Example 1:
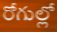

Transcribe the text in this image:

రోగుల్లో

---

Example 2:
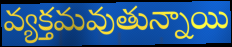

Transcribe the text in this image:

వ్యక్తమవుతున్నాయి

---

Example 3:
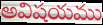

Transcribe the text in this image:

అవిషయము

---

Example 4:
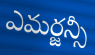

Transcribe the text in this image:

ఎమర్జన్సీ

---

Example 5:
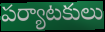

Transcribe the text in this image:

పర్యాటకులు